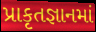
પ્રાકૃતજ્ઞાનમાં